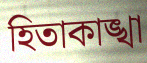
হিতাকাঙ্খা